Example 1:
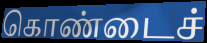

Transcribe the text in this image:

கொண்டைச்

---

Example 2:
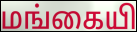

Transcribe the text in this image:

மங்கையி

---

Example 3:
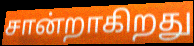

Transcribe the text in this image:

சான்றாகிறது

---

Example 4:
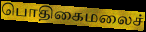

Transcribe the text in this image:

பொதிகைமலைச்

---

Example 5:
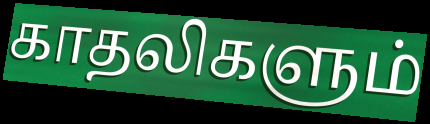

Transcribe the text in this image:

காதலிகளும்